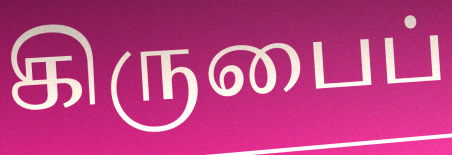
கிருபைப்